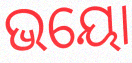
ଭୟୋ